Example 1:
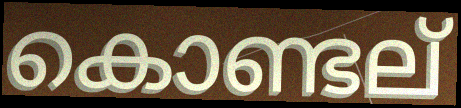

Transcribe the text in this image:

കൊണ്ടല്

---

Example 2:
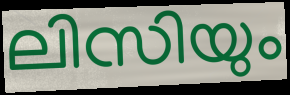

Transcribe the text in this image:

ലിസിയും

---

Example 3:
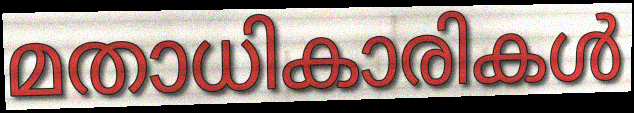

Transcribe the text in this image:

മതാധികാരികൾ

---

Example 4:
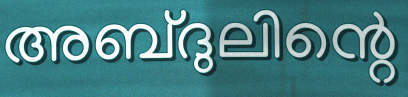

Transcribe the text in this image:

അബ്ദുലിന്റെ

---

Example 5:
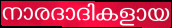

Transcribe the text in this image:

നാരദാദികളായ